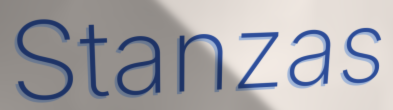
Stanzas